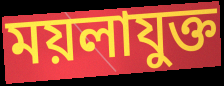
ময়লাযুক্ত